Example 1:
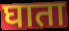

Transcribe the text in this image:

घाता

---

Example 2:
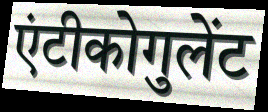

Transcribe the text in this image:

एंटीकोगुलेंट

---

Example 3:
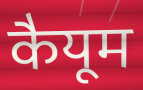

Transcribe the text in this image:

कैयूम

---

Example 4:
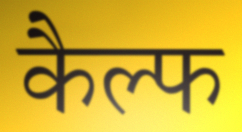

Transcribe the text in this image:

कैल्फ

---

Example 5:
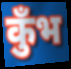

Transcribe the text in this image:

कुँभ